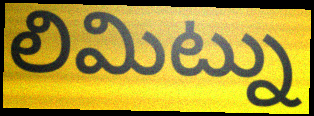
లిమిట్ను